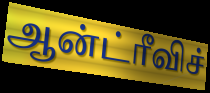
ஆன்ட்ரீவிச்